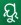
ୟୁ